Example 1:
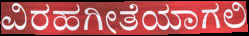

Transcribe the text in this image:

ವಿರಹಗೀತೆಯಾಗಲಿ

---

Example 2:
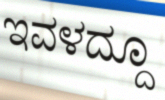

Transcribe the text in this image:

ಇವಳದ್ದೂ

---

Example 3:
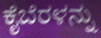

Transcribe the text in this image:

ಕೈಬೆರಳನ್ನು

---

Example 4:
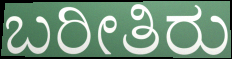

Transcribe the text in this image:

ಬರೀತಿರು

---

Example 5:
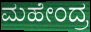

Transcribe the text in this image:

ಮಹೇಂದ್ರ